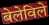
बेलेविले